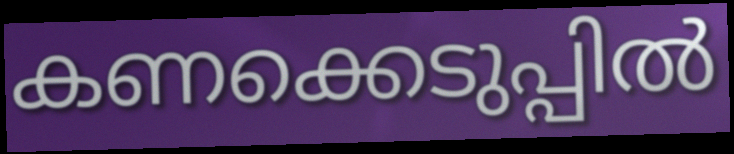
കണക്കെടുപ്പിൽ